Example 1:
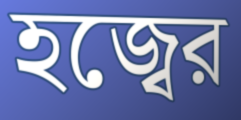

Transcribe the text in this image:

হজ্বের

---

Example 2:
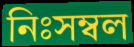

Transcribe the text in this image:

নিঃসম্বল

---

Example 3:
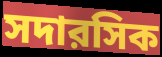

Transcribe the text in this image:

সদারসিক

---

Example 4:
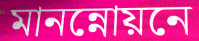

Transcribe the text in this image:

মানন্নোয়নে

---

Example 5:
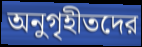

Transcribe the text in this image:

অনুগৃহীতদের